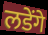
लडेंगे